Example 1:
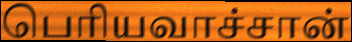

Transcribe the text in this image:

பெரியவாச்சான்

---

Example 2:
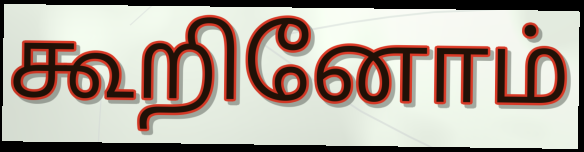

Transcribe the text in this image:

கூறினோம்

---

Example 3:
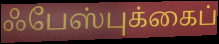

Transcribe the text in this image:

ஃபேஸ்புக்கைப்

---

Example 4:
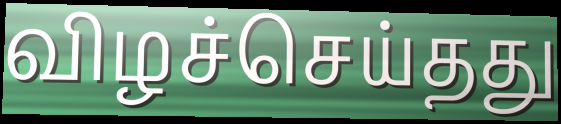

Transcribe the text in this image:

விழச்செய்தது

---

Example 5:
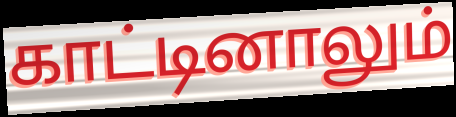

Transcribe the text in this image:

காட்டினாலும்